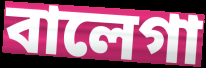
বালেগা